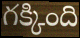
గక్కింది